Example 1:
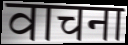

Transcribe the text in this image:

वाचना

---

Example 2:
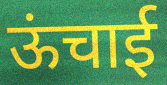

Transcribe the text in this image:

ऊंचाई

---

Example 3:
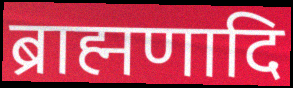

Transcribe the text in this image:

ब्राह्मणादि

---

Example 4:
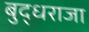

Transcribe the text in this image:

बुद्धराजा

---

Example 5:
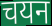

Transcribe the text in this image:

चयन